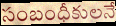
సంబంధీకులనే